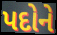
પદોને